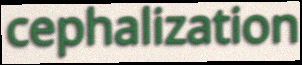
cephalization